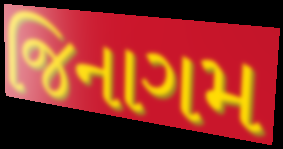
જિનાગમ